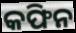
କଫିନ